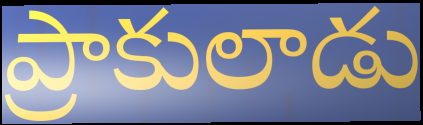
ప్రాకులాడు